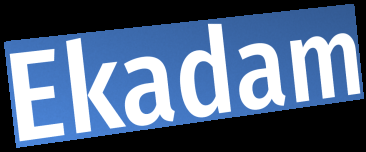
Ekadam